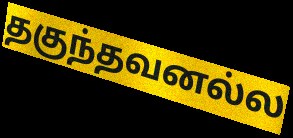
தகுந்தவனல்ல